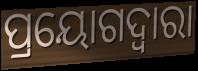
ପ୍ରୟୋଗଦ୍ୱାରା